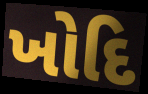
ખોદિ